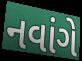
નવાંગે